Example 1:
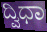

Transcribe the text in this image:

ದ್ವಿಧಾ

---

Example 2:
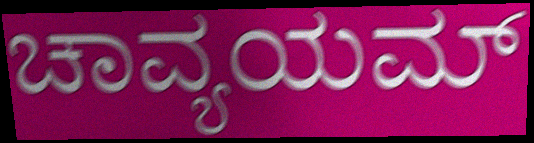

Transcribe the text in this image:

ಚಾವ್ಯಯಮ್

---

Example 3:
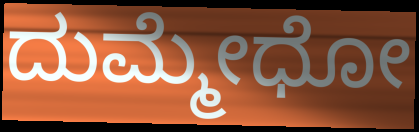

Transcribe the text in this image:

ದುಮ್ಮೇಧೋ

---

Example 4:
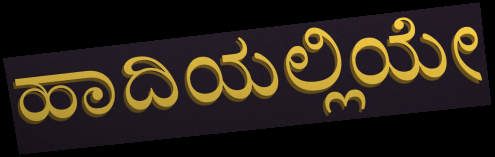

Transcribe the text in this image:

ಹಾದಿಯಲ್ಲಿಯೇ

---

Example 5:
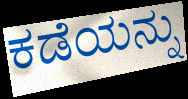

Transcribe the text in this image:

ಕಡೆಯನ್ನು